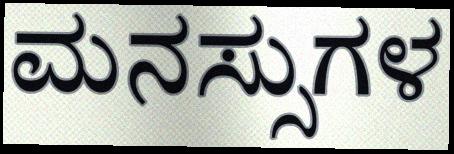
ಮನಸ್ಸುಗಳ